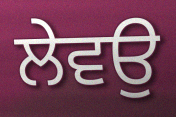
ਲੇਵਉ